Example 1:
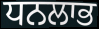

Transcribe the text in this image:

ਧਨਲਾਭ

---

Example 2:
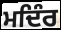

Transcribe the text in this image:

ਮਦਿੰਰ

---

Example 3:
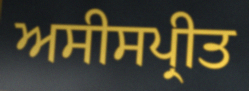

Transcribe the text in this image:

ਅਸੀਸਪ੍ਰੀਤ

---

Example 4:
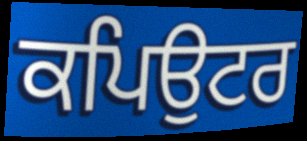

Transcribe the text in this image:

ਕਪਿਉਟਰ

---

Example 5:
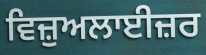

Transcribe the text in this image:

ਵਿਜ਼ੁਅਲਾਈਜ਼ਰ